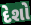
દેશો